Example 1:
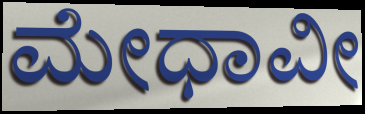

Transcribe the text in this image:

ಮೇಧಾವೀ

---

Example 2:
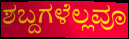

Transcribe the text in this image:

ಶಬ್ದಗಳೆಲ್ಲವೂ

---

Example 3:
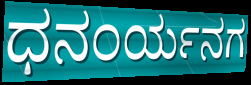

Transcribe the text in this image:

ಧನಂರ್ಯನಗ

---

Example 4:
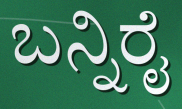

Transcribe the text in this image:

ಬನ್ನಿರೈ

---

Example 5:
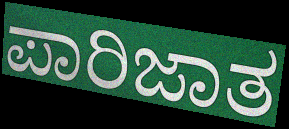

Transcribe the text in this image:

ಪಾರಿಜಾತ